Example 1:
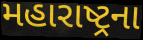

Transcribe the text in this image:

મહારાષ્ટ્રના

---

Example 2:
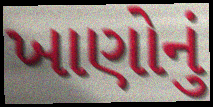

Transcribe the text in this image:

ખાણોનું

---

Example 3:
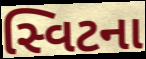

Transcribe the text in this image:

સ્વિટના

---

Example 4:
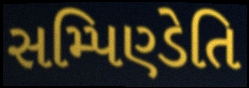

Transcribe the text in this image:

સમ્પિણ્ડેતિ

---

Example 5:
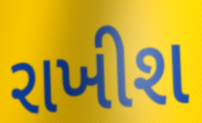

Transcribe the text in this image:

રાખીશ